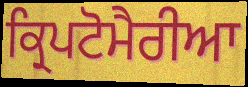
ਕ੍ਰਿਪਟੋਮੈਰੀਆ